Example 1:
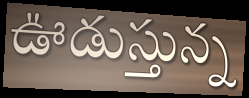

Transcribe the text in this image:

ఊడుస్తున్న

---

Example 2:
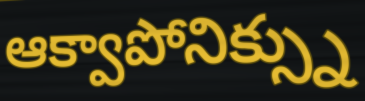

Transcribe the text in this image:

ఆక్వాపోనిక్స్ను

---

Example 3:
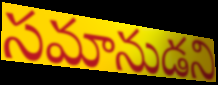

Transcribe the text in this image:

సమానుడని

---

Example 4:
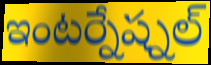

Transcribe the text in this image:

ఇంటర్నేష్నల్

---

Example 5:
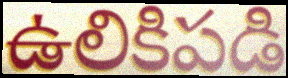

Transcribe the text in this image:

ఉలికిపడి